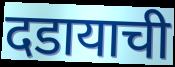
दडायाची